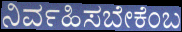
ನಿರ್ವಹಿಸಬೇಕೆಂಬ